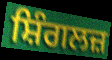
ਸ਼ਿੰਗਲਜ਼